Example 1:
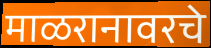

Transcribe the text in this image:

माळरानावरचे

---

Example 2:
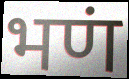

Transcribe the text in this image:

भणं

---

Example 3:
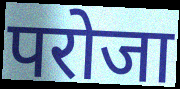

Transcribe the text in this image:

परोजा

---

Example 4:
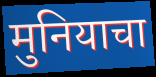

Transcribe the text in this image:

मुनियाचा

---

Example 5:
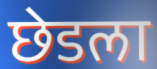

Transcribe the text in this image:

छेडला